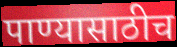
पाण्यासाठीच